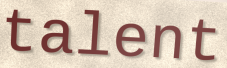
talent